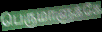
பெருமாளுக்கே